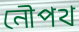
নৌপথ